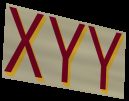
XYY